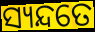
ସ୍ଯନ୍ଦତେ